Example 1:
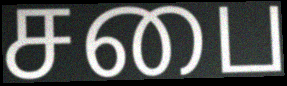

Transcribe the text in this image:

சபை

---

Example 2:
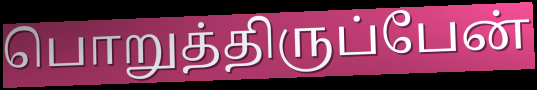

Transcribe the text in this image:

பொறுத்திருப்பேன்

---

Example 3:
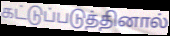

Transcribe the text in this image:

கட்டுப்படுத்தினால்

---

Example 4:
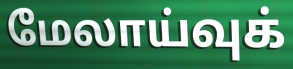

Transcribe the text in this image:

மேலாய்வுக்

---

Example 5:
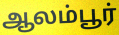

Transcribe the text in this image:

ஆலம்பூர்